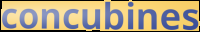
concubines